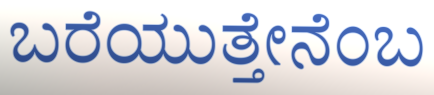
ಬರೆಯುತ್ತೇನೆಂಬ